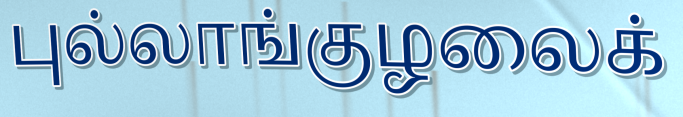
புல்லாங்குழலைக்